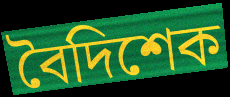
বৈদিশেক